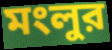
মংলুর